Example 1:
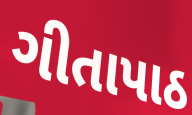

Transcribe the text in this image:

ગીતાપાઠ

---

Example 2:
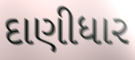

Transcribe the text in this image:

દાણીધાર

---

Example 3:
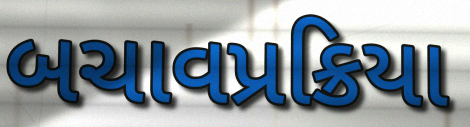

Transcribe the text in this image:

બચાવપ્રક્રિયા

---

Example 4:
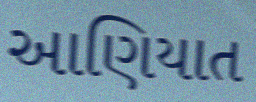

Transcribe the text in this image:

આણિયાત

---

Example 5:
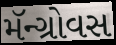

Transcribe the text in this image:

મૅન્ગ્રોવસ